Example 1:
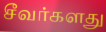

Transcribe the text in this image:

சீவர்களது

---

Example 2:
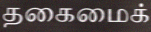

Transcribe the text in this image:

தகைமைக்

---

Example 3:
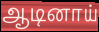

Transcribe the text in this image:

ஆடினாய்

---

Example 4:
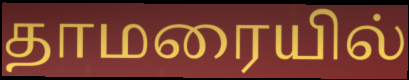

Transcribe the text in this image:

தாமரையில்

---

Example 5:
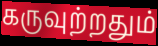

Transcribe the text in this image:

கருவுற்றதும்